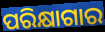
ପରିକ୍ଷାଗାର